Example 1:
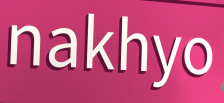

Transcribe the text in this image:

nakhyo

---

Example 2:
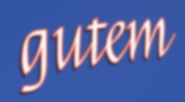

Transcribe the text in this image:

gutem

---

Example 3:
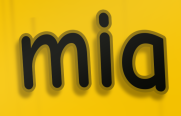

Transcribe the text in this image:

mia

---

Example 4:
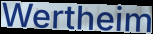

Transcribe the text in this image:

Wertheim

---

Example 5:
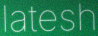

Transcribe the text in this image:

latesh